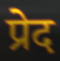
प्रेद